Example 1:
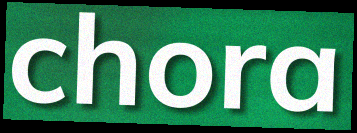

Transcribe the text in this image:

chora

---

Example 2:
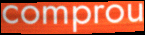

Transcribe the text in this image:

comprou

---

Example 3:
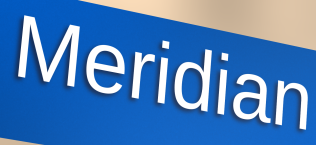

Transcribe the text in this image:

Meridian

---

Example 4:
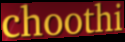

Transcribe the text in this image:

choothi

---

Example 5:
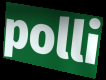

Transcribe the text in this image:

polli